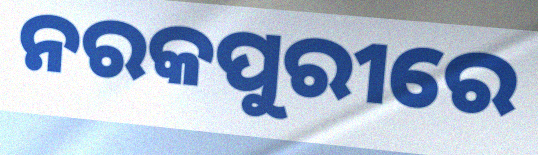
ନରକପୁରୀରେ